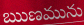
ఋణమును